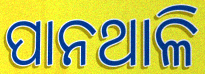
ପାନଥାଳି